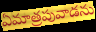
ఏమాత్రపువాడను